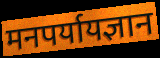
मनपर्यायज्ञान